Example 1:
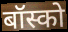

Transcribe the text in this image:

बॉस्को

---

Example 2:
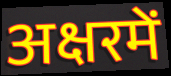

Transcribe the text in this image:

अक्षरमें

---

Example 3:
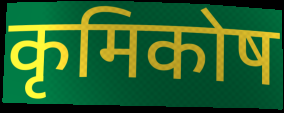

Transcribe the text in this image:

कृमिकोष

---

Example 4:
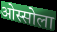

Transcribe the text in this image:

ओस्सोला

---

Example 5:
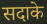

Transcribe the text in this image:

सदाके